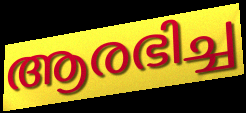
ആരഭിച്ച